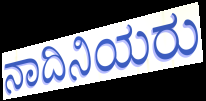
ನಾದಿನಿಯರು